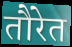
तौरेत